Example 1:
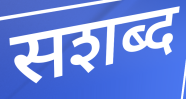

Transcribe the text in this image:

सशब्द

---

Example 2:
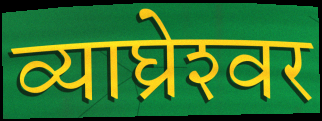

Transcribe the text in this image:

व्याघ्रेश्वर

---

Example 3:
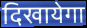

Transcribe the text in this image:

दिखायेगा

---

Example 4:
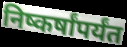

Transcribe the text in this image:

निष्कर्षांपर्यंत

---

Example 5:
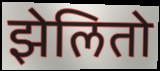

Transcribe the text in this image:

झेलितो